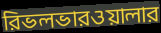
রিভলভারওয়ালার